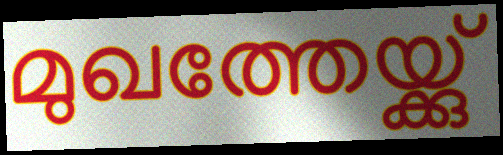
മുഖത്തേയ്ക്കു്